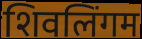
शिवलिंगम